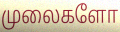
முலைகளோ